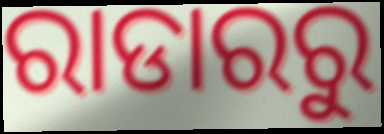
ରାଡାରରୁ